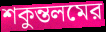
শকুন্তলমের